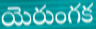
యెరుంగక